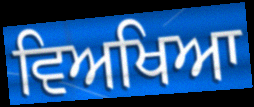
ਵਿਅਖਿਆ